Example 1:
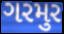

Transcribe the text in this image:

ગરમુર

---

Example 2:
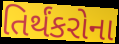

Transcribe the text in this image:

તિર્થંકરોના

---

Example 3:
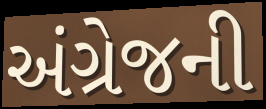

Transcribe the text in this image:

અંગ્રેજની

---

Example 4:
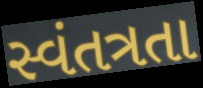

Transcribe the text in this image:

સ્વંતત્રતા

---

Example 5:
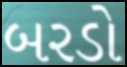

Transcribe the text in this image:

બરડો